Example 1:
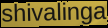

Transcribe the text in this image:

shivalinga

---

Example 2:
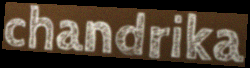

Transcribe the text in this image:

chandrika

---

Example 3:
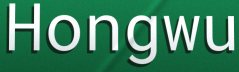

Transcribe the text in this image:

Hongwu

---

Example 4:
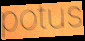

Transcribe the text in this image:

potus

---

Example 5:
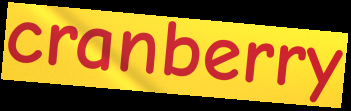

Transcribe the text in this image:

cranberry